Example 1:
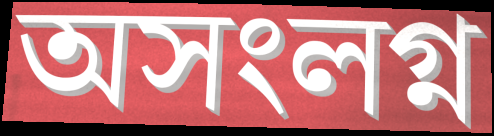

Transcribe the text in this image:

অসংলগ্ন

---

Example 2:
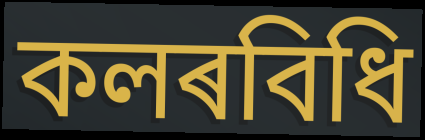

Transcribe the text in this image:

কলৰবিধি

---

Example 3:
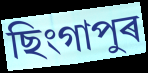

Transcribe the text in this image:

ছিংগাপুৰ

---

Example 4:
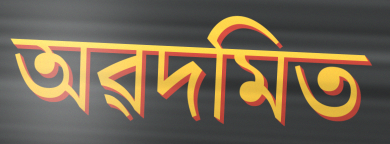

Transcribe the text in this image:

অৱদমিত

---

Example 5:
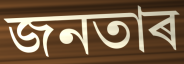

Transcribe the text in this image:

জনতাৰ